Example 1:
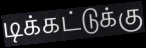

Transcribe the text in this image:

டிக்கட்டுக்கு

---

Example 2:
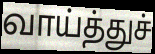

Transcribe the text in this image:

வாய்த்துச்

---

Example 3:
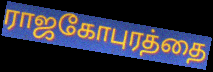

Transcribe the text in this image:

ராஜகோபுரத்தை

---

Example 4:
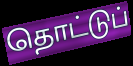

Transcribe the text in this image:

தொட்டுப்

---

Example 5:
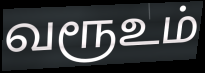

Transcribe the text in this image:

வரூஉம்